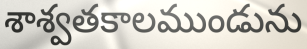
శాశ్వతకాలముండును